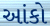
આંકો